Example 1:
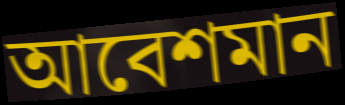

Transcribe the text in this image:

আবেশমান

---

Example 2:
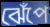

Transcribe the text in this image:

ঝেঁপে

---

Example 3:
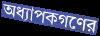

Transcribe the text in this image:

অধ্যাপকগণের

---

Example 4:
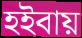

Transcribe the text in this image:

হইবায়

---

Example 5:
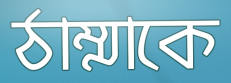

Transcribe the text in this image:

ঠাম্মাকে